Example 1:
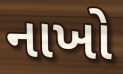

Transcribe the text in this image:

નાખો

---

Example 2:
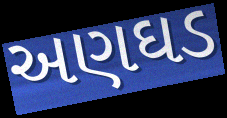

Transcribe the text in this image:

અણઘડ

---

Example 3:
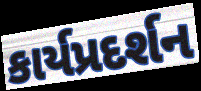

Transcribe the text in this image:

કાર્યપ્રદર્શન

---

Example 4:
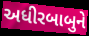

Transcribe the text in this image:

અધીરબાબુને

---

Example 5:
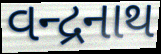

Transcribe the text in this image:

વન્દ્રનાથ